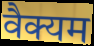
वैक्यम